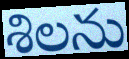
శిలను